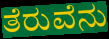
ತೆರುವೆನು